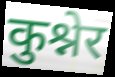
कुश्नेर